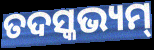
ତଦସ୍କଭ୍ୟମ୍